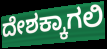
ದೇಶಕ್ಕಾಗಲಿ